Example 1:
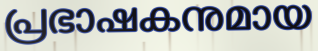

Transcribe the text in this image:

പ്രഭാഷകനുമായ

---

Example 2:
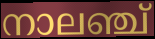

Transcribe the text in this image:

നാലഞ്ച്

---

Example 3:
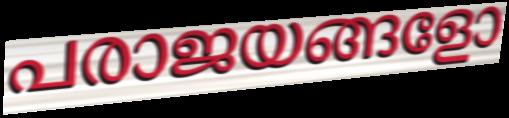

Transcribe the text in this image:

പരാജയങ്ങളോ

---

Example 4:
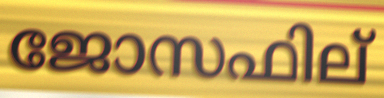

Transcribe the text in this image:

ജോസഫില്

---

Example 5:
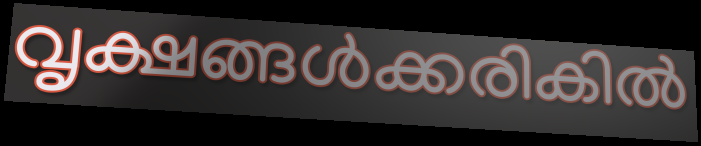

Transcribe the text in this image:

വൃക്ഷങ്ങൾക്കരികിൽ